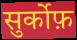
सुर्कोफ़